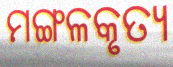
ମଙ୍ଗଳକୃତ୍ୟ